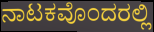
ನಾಟಕವೊಂದರಲ್ಲಿ